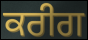
ਕਰੀਗ